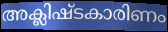
അക്ലിഷ്ടകാരിണം